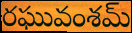
రఘువంశమ్